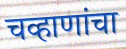
चव्हाणांचा